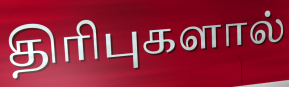
திரிபுகளால்